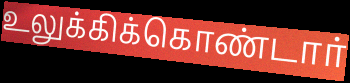
உலுக்கிக்கொண்டார்